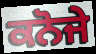
ਕਨੋਜੇ